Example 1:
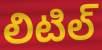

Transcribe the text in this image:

లిటిల్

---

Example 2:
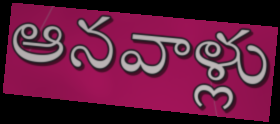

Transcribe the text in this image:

ఆనవాళ్లు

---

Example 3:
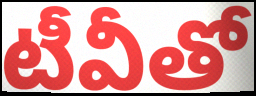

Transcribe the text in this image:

టీవీతో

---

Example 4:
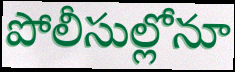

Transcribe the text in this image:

పోలీసుల్లోనూ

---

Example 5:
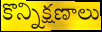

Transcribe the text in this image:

కొన్నిక్షణాలు